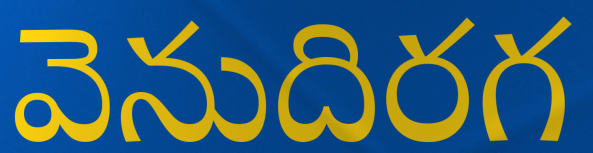
వెనుదిరగ